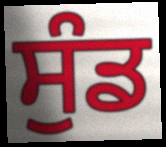
ਸੁੰਡ